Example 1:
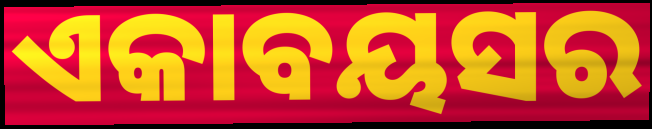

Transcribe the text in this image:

ଏକାବୟସର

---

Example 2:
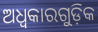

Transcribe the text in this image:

ଅଧ୍ବକାରଗୁଡ଼ିକ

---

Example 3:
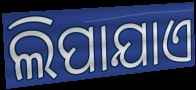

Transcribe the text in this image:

ଲିପାଯାଏ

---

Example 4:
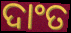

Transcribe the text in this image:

ଦାଂତ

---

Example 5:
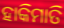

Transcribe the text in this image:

ହାକିମାତି